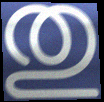
തു